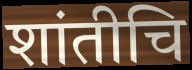
शांतीचि